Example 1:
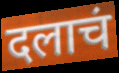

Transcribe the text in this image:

दलाचं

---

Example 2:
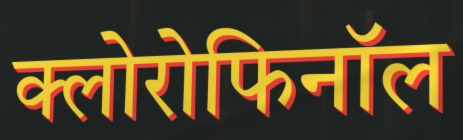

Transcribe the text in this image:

क्लोरोफिनॉल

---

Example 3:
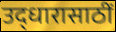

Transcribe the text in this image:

उद्धारासाठीं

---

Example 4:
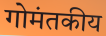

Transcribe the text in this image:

गोमंतकीय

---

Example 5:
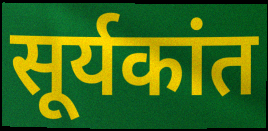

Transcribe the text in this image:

सूर्यकांत